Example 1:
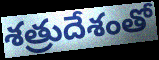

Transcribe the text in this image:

శత్రుదేశంతో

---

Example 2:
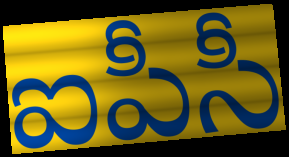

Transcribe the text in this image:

ఐపీసీ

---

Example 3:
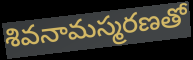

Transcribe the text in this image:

శివనామస్మరణతో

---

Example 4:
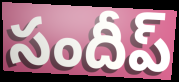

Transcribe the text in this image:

సందీప్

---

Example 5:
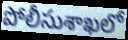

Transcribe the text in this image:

పోలీసుశాఖలో